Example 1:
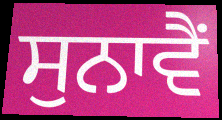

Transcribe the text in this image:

ਸੁਨਾਵੈਂ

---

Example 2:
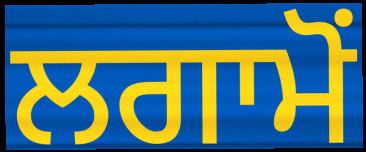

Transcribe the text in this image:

ਲਗਾਮੋਂ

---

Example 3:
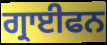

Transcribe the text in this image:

ਗ੍ਰਾਈਫਨ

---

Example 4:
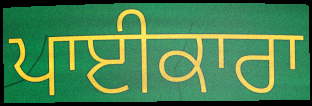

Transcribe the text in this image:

ਪਾਈਕਾਰਾ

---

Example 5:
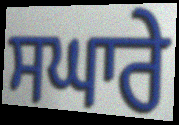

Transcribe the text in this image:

ਸਘਾਰੇ